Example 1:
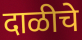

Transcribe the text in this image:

दाळीचे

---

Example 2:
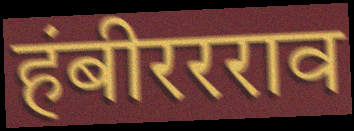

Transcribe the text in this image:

हंबीररराव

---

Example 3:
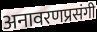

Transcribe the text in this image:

अनावरणप्रसंगी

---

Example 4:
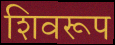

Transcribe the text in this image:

शिवरूप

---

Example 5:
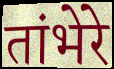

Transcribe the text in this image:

तांभेरे